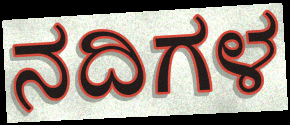
ನದಿಗಳ